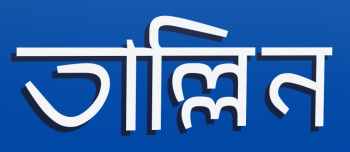
তাল্লিন